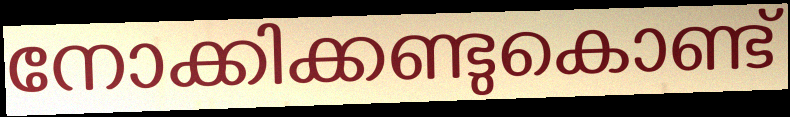
നോക്കിക്കണ്ടുകൊണ്ട്